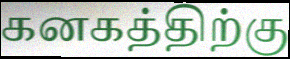
கனகத்திற்கு